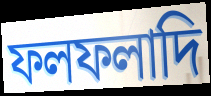
ফলফলাদি